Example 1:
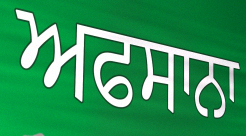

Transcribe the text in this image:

ਅਫਸਾਨਾ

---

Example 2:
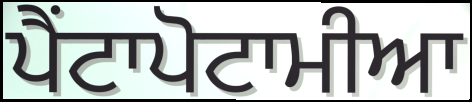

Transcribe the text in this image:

ਪੈਂਟਾਪੋਟਾਮੀਆ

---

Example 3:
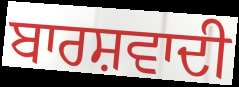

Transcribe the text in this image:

ਬਾਰਸ਼ਵਾਦੀ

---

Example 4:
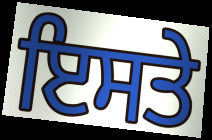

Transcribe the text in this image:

ਇਸਤੇ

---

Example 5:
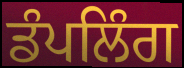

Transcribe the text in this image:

ਡੰਪਲਿੰਗ